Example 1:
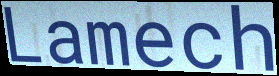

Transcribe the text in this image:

Lamech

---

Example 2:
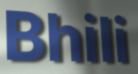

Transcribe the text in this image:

Bhili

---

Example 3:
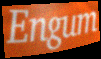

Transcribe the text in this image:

Engum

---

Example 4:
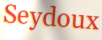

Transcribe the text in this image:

Seydoux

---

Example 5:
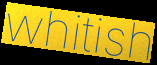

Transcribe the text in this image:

whitish